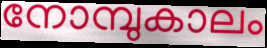
നോമ്പുകാലം